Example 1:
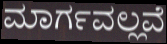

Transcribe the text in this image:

ಮಾರ್ಗವಲ್ಲವೆ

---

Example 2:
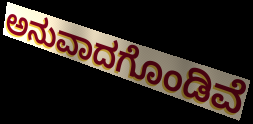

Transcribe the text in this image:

ಅನುವಾದಗೊಂಡಿವೆ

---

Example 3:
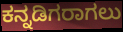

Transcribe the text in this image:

ಕನ್ನಡಿಗರಾಗಲು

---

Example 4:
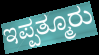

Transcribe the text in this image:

ಇಪ್ಪತ್ಮೂರು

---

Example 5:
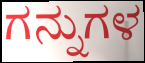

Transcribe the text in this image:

ಗನ್ನುಗಳ